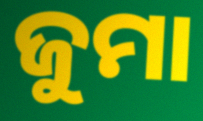
ଜୁମା